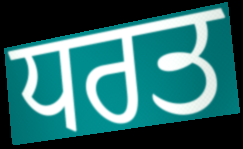
ਧਰਤ